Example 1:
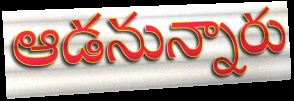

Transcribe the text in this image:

ఆడనున్నారు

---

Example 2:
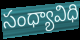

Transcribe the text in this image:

సంధ్యావిధి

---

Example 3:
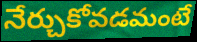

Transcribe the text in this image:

నేర్చుకోవడమంటే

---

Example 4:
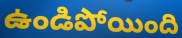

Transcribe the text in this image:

ఉండిపోయింది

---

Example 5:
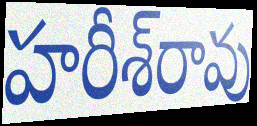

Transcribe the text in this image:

హరీశ్‌రావు